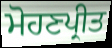
ਮੋਹਣਪ੍ਰੀਤ